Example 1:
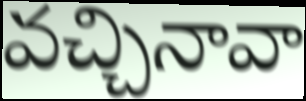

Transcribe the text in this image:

వచ్చినావా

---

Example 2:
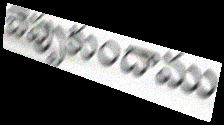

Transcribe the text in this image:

చెప్పుకుందాము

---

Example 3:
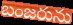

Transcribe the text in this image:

బంజరును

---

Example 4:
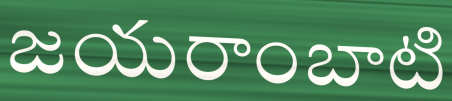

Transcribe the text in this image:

జయరాంబాటి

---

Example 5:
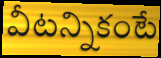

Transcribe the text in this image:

వీటన్నికంటే